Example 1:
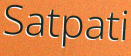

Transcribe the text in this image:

Satpati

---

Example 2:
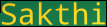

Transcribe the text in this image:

Sakthi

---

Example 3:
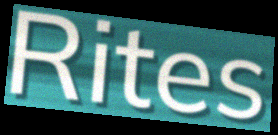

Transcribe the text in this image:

Rites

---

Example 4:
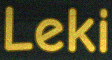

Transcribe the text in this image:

Leki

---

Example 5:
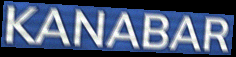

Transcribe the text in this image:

KANABAR